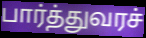
பார்த்துவரச்